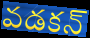
వడకన్